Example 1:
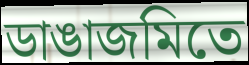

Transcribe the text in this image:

ডাঙাজমিতে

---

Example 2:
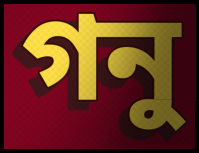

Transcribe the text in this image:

গনু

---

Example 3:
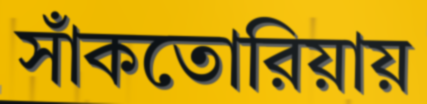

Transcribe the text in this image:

সাঁকতোরিয়ায়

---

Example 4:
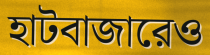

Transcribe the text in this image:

হাটবাজারেও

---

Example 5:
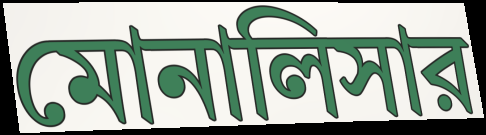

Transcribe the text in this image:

মোনালিসার